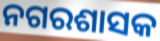
ନଗରଶାସକ